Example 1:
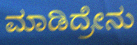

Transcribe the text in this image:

ಮಾಡಿದ್ರೇನು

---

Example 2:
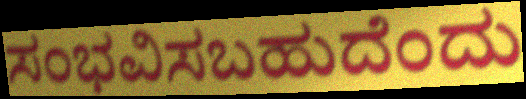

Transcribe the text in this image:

ಸಂಭವಿಸಬಹುದೆಂದು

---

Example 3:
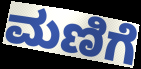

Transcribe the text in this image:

ಮಣಿಗೆ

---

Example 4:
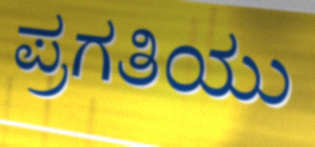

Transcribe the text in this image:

ಪ್ರಗತಿಯು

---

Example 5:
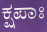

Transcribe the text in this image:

ಕ್ಷಪಾಃ